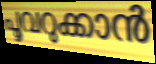
പൂവറുക്കാൻ